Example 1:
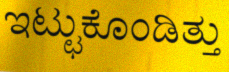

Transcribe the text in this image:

ಇಟ್ಟುಕೊಂಡಿತ್ತು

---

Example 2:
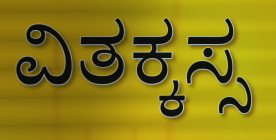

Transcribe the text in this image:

ವಿತಕ್ಕಸ್ಸ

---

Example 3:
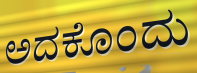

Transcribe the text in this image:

ಅದಕೊಂದು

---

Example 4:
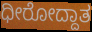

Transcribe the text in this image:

ಧೀರೋದ್ದಾತ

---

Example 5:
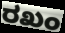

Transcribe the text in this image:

ರಖಂ